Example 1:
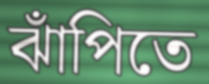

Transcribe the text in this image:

ঝাঁপিতে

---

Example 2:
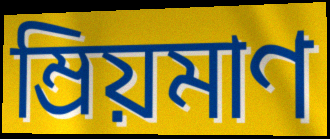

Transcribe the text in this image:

ম্রিয়মাণ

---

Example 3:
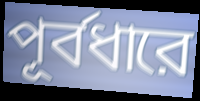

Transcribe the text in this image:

পূর্বধারে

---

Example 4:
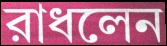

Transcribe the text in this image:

রাধলেন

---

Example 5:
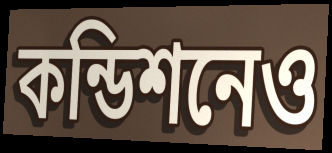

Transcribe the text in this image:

কন্ডিশনেও